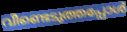
വീണ്ടെടുത്തപ്പോൾ